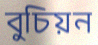
বুচিয়ন